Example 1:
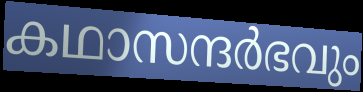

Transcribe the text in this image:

കഥാസന്ദർഭവും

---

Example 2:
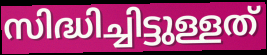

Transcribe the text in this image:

സിദ്ധിച്ചിട്ടുള്ളത്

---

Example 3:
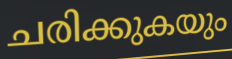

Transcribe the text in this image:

ചരിക്കുകയും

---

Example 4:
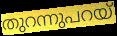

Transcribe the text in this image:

തുറന്നുപറയ്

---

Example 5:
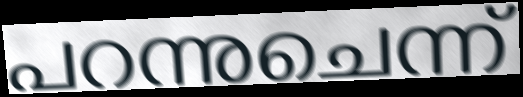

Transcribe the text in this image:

പറന്നുചെന്ന്